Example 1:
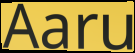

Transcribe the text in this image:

Aaru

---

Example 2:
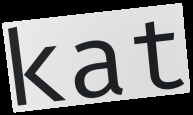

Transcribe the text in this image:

kat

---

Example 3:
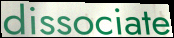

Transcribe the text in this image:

dissociate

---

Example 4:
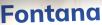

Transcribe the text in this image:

Fontana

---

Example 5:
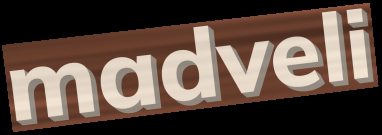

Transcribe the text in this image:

madveli